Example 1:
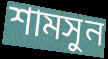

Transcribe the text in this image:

শামসুন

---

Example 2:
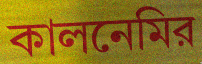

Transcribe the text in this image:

কালনেমির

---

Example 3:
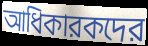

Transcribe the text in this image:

আধিকারকদের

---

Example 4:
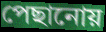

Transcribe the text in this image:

পেছানোয়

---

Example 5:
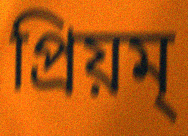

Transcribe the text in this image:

প্রিয়ম্